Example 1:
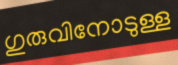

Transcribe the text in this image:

ഗുരുവിനോടുള്ള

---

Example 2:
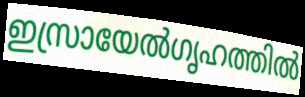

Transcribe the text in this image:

ഇസ്രായേൽഗൃഹത്തിൽ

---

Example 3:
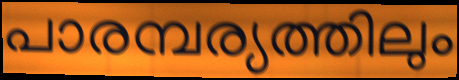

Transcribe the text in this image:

പാരമ്പര്യത്തിലും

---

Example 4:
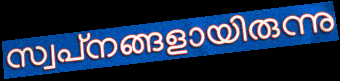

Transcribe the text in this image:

സ്വപ്‌നങ്ങളായിരുന്നു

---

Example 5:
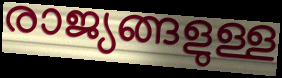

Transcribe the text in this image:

രാജ്യങ്ങളുള്ള